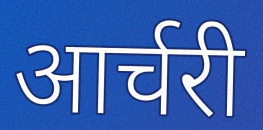
आर्चरी